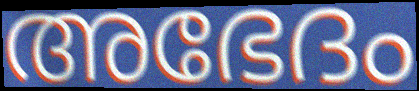
അഭേദം